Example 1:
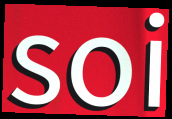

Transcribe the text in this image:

soi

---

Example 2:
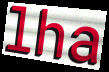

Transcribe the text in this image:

lha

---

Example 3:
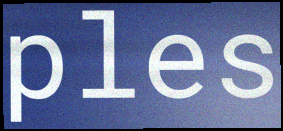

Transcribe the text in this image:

ples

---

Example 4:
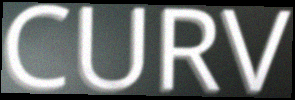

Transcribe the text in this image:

CURV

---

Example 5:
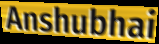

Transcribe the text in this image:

Anshubhai